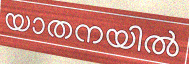
യാതനയിൽ